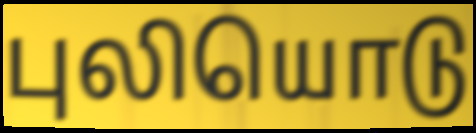
புலியொடு